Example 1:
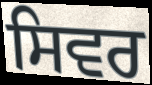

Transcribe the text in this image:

ਸਿਵਰ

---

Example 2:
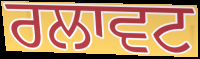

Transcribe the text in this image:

ਰਲਾਵਟ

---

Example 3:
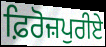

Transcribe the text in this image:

ਫ਼ਿਰੋਜ਼ਪੁਰੀਏ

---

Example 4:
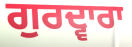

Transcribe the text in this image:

ਗੁਰਦ੍ਵਾਰਾ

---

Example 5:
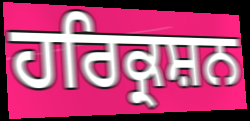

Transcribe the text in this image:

ਹਰਿਕ੍ਰਸ਼ਨ